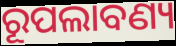
ରୂପଲାବଣ୍ୟ